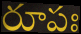
రూపః